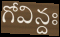
గోవిన్దః